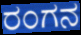
ರಂಗನ